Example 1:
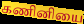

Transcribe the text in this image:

கணினியை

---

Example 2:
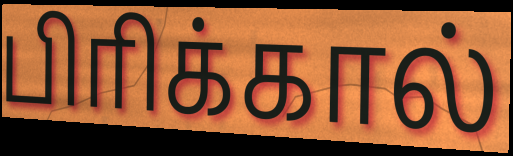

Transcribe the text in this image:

பிரிக்கால்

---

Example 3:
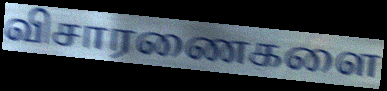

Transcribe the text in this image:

விசாரணைகளை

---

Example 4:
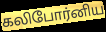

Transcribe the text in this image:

கலிபோர்னிய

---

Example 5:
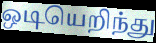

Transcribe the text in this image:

ஒடியெறிந்து